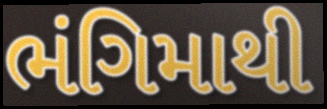
ભંગિમાથી